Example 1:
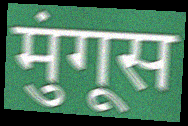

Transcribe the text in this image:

मुंगूस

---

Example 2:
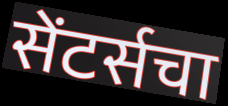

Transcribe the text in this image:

सेंटर्सचा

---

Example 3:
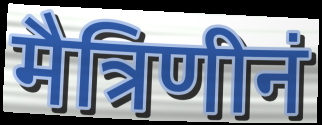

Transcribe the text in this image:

मैत्रिणीनं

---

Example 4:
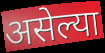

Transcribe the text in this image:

असेल्या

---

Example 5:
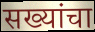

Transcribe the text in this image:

सख्यांचा